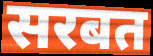
सरबत